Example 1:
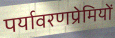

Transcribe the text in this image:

पर्यावरणप्रेमियों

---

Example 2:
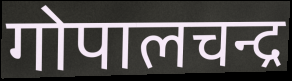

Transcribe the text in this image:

गोपालचन्द्र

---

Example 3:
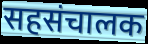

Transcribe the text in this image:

सहसंचालक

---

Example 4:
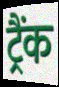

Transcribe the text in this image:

ट्रैंक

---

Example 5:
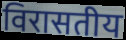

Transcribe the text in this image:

विरासतीय